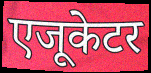
एजूकेटर